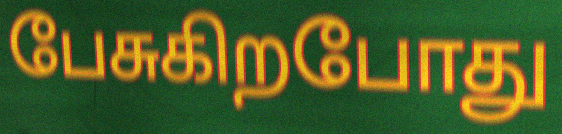
பேசுகிறபோது